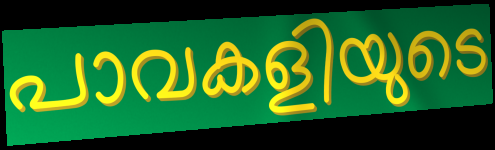
പാവകളിയുടെ